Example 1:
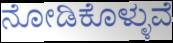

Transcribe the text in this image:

ನೋಡಿಕೊಳ್ಳುವೆ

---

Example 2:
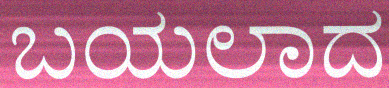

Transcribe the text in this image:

ಬಯಲಾದ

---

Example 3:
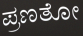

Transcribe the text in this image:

ಪ್ರಣತೋ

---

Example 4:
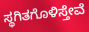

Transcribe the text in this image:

ಸ್ಥಗಿತಗೊಳಿಸ್ತೇವೆ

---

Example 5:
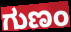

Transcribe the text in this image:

ಗುಣಂ